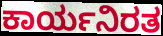
ಕಾರ್ಯನಿರತ